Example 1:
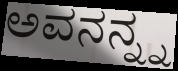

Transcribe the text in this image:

ಅವನನ್ನ್ನ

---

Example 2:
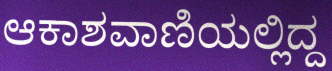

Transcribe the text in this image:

ಆಕಾಶವಾಣಿಯಲ್ಲಿದ್ದ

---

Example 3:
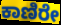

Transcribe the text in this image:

ಕಾಣಿರೇ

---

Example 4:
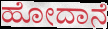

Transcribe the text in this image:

ಹೋದಾನೆ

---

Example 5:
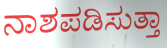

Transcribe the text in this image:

ನಾಶಪಡಿಸುತ್ತಾ